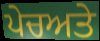
ਪੇਚਅਤੇ